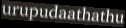
urupudaathathu